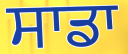
ਸਾਡਾ